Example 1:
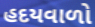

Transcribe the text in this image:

હદયવાળો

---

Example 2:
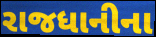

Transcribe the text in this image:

રાજધાનીના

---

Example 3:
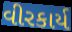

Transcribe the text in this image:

વીરકાર્ય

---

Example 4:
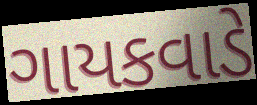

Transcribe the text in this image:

ગાયકવાડે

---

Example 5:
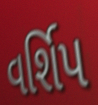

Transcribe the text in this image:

વર્શિપ